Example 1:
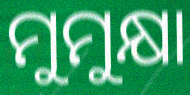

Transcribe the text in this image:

ମୁମୁକ୍ଷା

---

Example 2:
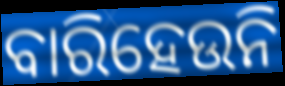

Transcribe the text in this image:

ବାରିହେଉନି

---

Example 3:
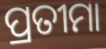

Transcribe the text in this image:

ପ୍ରତୀମା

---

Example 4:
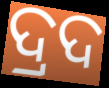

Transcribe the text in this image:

ଦ୍ରଦ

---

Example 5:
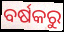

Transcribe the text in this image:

ବର୍ଷକରୁ